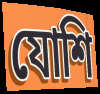
যোশি